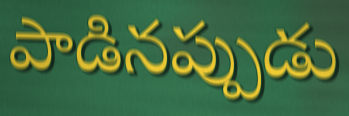
పాడినప్పుడు